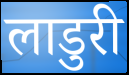
लाडुरी